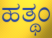
ಹತ್ಥಂ